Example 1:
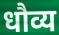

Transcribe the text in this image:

धौव्य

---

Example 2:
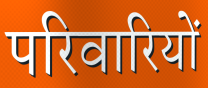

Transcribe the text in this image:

परिवारियों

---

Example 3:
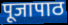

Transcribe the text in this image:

पूजापाठ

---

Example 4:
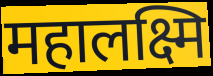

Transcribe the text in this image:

महालक्ष्मि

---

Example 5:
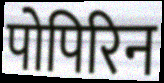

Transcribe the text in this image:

पोपिरिन